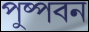
পুষ্পবন